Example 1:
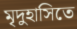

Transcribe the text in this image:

মৃদুহাসিতে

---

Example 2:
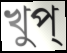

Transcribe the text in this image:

খুপ্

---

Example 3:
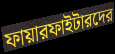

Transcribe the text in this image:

ফায়ারফাইটারদের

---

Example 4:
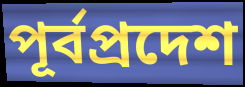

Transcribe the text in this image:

পূর্বপ্রদেশ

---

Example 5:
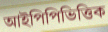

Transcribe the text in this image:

আইপিপিভিত্তিক